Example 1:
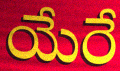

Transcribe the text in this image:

యేరే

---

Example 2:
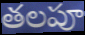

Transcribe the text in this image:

తలపూ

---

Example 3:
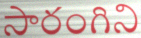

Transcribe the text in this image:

సారంగిని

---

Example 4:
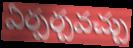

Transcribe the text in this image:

ఏర్పర్చవచ్చు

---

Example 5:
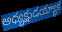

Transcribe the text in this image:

అధ్యక్షుడయ్యాక